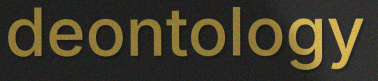
deontology